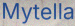
Mytella